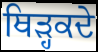
ਥਿੜ੍ਹਕਦੇ